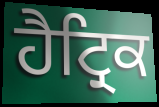
ਹੈਟ੍ਰਿਕ